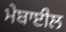
ਮੇਬਾਈਲ